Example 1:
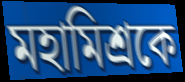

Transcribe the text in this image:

মহামিশ্রকে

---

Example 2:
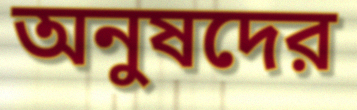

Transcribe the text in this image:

অনুষদের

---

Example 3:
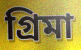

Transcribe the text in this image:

গ্রিমা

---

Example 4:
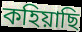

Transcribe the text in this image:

কহিয়াছি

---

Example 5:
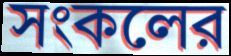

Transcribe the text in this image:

সংকলের